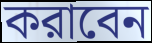
করাবেন